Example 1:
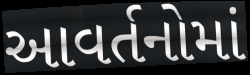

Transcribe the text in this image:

આવર્તનોમાં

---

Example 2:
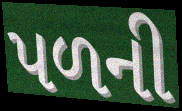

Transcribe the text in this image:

પળની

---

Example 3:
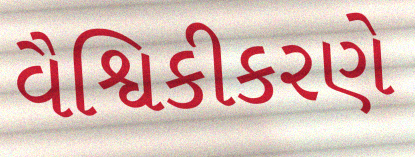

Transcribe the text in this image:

વૈશ્વિકીકરણે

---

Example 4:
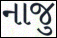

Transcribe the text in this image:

નાજુ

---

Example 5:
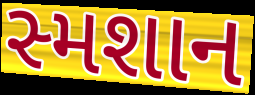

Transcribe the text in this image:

સ્મશાન